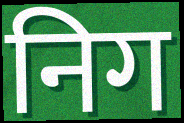
निग